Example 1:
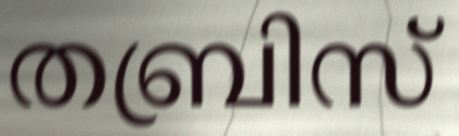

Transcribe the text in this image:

തബ്രിസ്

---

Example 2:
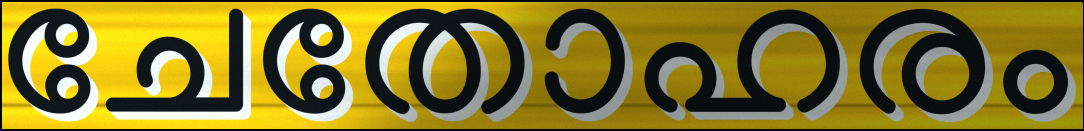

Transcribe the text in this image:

ചേതോഹരം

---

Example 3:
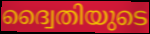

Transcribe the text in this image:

ദ്വൈതിയുടെ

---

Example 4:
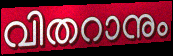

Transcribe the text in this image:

വിതറാനും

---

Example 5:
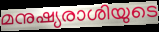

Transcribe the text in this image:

മനുഷ്യരാശിയുടെ